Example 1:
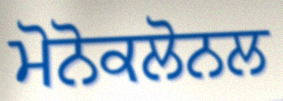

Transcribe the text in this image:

ਮੋਨੋਕਲੋਨਲ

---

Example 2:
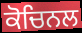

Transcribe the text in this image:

ਕੋਚਿਨਲ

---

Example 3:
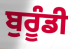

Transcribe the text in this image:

ਬੁਰੂੰਡੀ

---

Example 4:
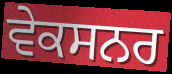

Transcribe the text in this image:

ਵੇਕਸਨਰ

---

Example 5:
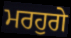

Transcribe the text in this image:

ਮਰਹੁਗੇ